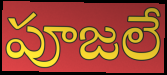
పూజలే